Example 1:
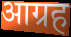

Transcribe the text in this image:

आग्रह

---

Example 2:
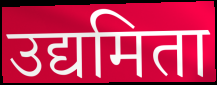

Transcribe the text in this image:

उद्यमिता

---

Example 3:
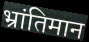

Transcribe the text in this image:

भ्रांतिमान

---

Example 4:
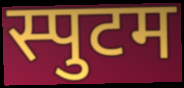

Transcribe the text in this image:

स्पुटम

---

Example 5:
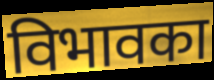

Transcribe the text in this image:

विभावका